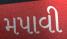
મપાવી